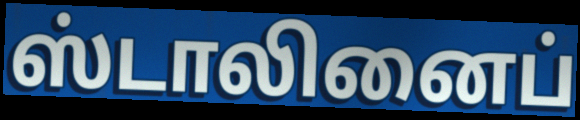
ஸ்டாலினைப்